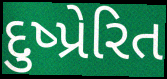
દુષ્પ્રેરિત